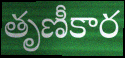
తృణీకార